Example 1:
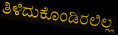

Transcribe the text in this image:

ತಿಳಿದುಕೊಂಡಿರಲಿಲ್ಲ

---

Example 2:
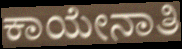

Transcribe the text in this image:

ಕಾಯೇನಾತಿ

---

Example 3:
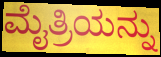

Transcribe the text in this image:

ಮೈತ್ರಿಯನ್ನು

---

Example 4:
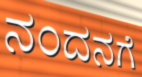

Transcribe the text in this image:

ನಂದನಗೆ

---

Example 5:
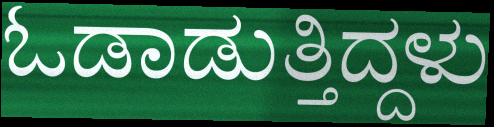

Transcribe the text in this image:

ಓಡಾಡುತ್ತಿದ್ದಳು